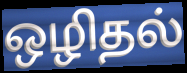
ஒழிதல்